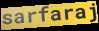
sarfaraj